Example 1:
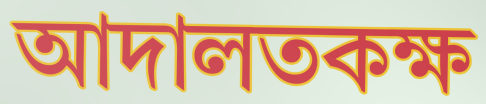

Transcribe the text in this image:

আদালতকক্ষ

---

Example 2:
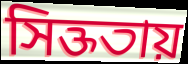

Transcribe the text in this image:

সিক্ততায়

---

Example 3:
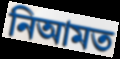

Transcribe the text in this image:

নিআমত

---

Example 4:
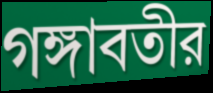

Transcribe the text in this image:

গঙ্গাবতীর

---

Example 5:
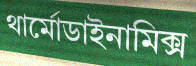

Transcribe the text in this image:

থার্মোডাইনামিক্স